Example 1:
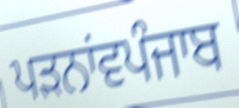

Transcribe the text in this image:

ਪੜਨਾਂਵਪੰਜਾਬ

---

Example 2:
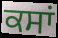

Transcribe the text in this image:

ਕਸਾਂ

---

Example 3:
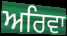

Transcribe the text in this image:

ਅਰਿਵਾ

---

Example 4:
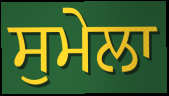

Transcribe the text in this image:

ਸੁਮੇਲਾ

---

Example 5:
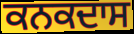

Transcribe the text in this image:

ਕਨਕਦਾਸ